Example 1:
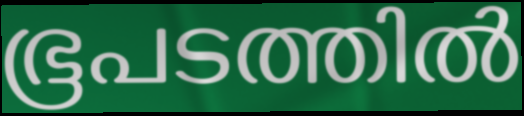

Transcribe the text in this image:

ഭൂപടത്തിൽ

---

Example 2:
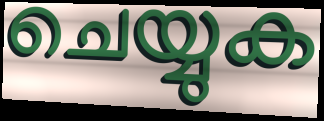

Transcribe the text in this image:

ചെയ്യുക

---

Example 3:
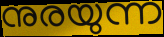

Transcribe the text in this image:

നുരയുന്ന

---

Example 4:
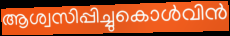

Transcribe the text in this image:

ആശ്വസിപ്പിച്ചുകൊൾവിൻ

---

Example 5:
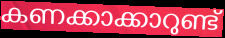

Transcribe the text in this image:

കണക്കാക്കാറുണ്ട്